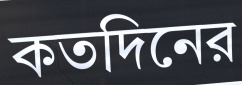
কতদিনের